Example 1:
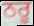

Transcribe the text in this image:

ਠਰੂ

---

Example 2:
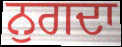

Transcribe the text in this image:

ਨੁਗਦਾ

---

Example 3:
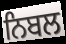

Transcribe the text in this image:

ਨਿਬਲ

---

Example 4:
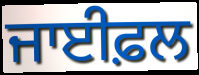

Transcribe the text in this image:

ਜਾਈਫ਼ਲ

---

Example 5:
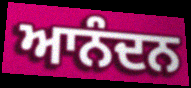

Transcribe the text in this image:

ਆਨੰਦਨ